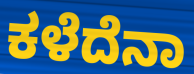
ಕಳೆದೆನಾ